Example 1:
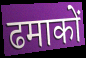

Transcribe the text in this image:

ढमाकों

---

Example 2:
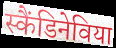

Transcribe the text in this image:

स्कैंडिनेविया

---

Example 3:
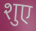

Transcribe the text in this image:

शुए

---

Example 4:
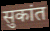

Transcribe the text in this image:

सुकांत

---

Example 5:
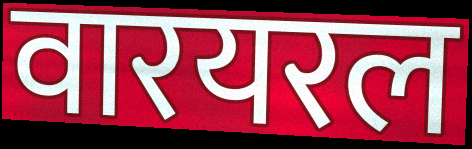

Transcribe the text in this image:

वारयरल